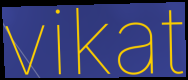
vikat